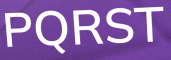
PQRST